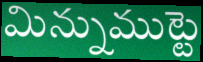
మిన్నుముట్టె